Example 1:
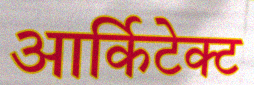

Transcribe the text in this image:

आर्किटेक्ट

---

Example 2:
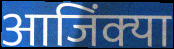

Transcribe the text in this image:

आजिंक्या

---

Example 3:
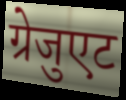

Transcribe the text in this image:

ग्रेजुएट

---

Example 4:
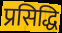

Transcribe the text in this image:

प्रसिद्धि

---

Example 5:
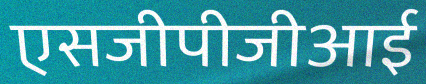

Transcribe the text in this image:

एसजीपीजीआई